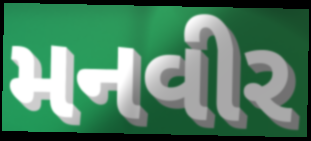
મનવીર